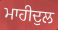
ਮਾਹੀਦੁਲ